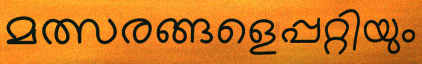
മത്സരങ്ങളെപ്പറ്റിയും